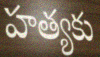
హత్యకు